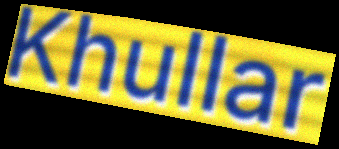
Khullar